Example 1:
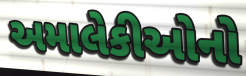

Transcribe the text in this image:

અમાલેકીઓનો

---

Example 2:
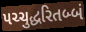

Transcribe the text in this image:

પચ્ચુદ્ધરિતબ્બં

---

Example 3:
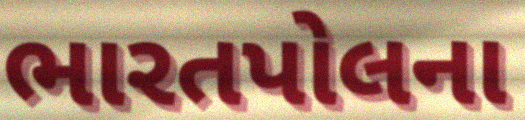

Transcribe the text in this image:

ભારતપોલના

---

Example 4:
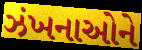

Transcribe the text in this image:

ઝંખનાઓને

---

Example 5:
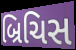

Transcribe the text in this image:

બ્રિચિસ